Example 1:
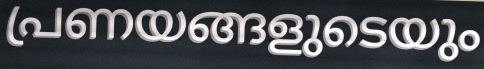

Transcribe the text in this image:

പ്രണയങ്ങളുടെയും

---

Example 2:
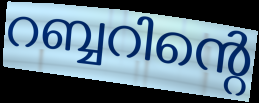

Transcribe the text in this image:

റബ്ബറിന്റെ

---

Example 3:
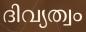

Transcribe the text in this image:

ദിവ്യത്വം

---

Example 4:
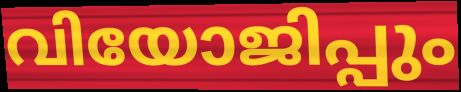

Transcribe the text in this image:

വിയോജിപ്പും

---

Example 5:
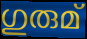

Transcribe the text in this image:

ഗുരുമ്